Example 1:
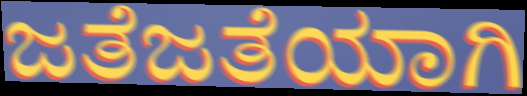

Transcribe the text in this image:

ಜತೆಜತೆಯಾಗಿ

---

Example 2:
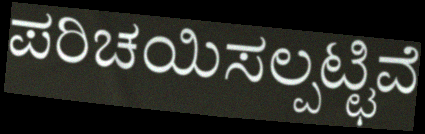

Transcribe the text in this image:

ಪರಿಚಯಿಸಲ್ಪಟ್ಟಿವೆ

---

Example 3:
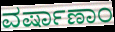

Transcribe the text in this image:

ವರ್ಷಾಣಾಂ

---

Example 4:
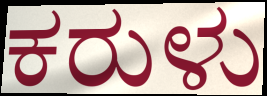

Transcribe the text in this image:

ಕರುಳು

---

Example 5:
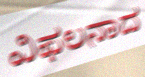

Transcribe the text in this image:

ವಿಫಲನಾದ